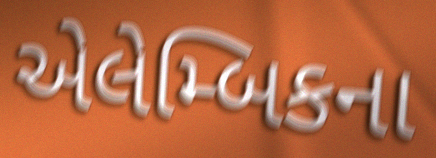
એલેમ્બિકના